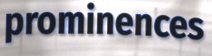
prominences